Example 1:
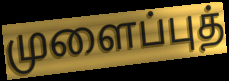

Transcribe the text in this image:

முளைப்புத்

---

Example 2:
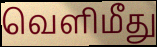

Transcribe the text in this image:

வெளிமீது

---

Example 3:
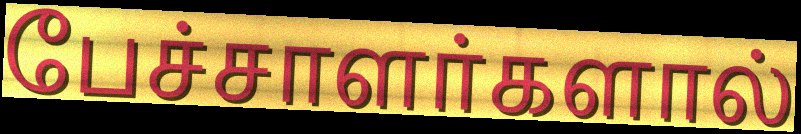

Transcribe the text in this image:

பேச்சாளர்களால்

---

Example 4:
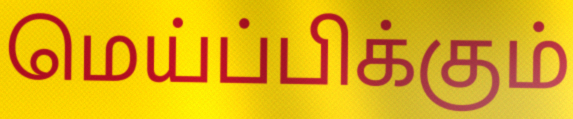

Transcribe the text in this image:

மெய்ப்பிக்கும்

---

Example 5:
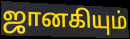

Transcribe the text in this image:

ஜானகியும்